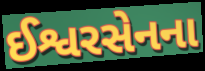
ઈશ્વરસેનના